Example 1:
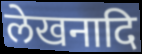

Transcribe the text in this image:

लेखनादि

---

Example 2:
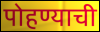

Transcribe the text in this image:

पोहण्याची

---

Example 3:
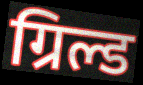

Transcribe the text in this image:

ग्रिल्ड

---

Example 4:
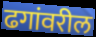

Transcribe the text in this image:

ढगांवरील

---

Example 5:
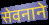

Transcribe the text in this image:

सेवनाने